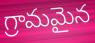
గ్రామమైన